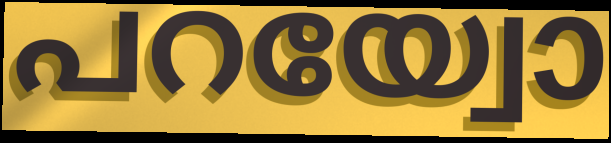
പറയ്വോ